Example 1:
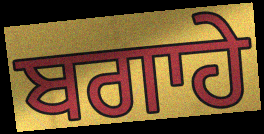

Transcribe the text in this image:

ਬਗਾਹੇ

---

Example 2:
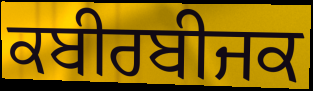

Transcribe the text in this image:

ਕਬੀਰਬੀਜਕ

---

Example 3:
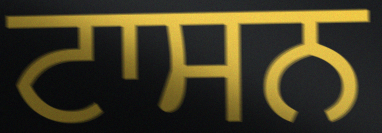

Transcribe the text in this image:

ਟਾਸਨ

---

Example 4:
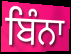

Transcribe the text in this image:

ਬਿੰਨਾ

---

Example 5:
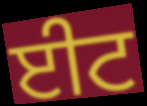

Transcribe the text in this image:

ਈਟ